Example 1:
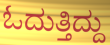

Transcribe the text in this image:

ಓದುತ್ತಿದ್ದು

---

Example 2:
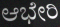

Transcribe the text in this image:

ಆಭೇರಿ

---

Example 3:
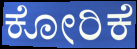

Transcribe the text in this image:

ಕೋರಿಕೆ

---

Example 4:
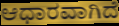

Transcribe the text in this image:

ಆಧಾರವಾಗಿದೆ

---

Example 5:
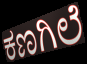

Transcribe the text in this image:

ಕಣಗಿಲೆ